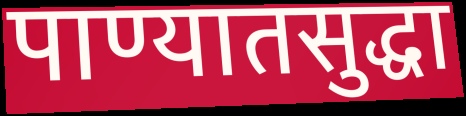
पाण्यातसुद्धा